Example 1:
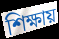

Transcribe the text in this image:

শিক্ষায়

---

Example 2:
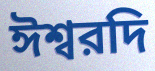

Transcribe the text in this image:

ঈশ্বরদি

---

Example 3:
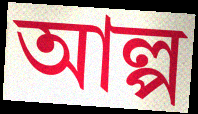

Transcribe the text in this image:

আল্প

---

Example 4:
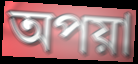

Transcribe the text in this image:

অপয়া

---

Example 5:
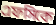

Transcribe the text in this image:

এফসিকে